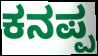
ಕನಪ್ಪ